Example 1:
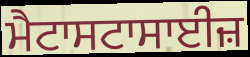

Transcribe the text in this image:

ਮੈਟਾਸਟਾਸਾਈਜ਼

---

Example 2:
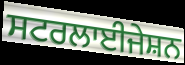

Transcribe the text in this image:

ਸਟਰਲਾਈਜੇਸ਼ਨ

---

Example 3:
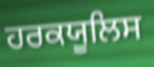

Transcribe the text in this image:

ਹਰਕਯੂਲਿਸ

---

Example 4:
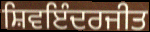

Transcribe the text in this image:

ਸ਼ਿਵਇੰਦਰਜੀਤ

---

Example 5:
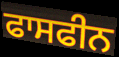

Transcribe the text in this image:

ਫਾਸਫੀਨ